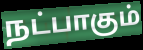
நட்பாகும்